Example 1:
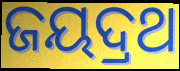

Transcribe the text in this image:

ଜୟଦ୍ରଥ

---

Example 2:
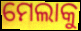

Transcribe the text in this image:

ମେଲାକୁ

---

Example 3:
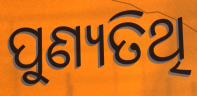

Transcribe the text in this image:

ପୁଣ୍ୟତିଥି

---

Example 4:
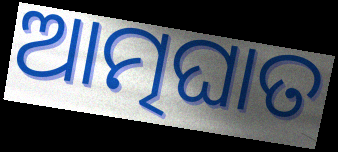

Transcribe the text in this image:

ଆତ୍ମଘାତ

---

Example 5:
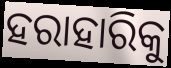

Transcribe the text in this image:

ହରାହାରିକୁ